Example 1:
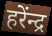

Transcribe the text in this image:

हरेंन्द्र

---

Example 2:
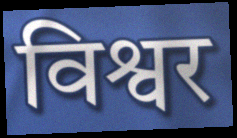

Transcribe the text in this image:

विश्वर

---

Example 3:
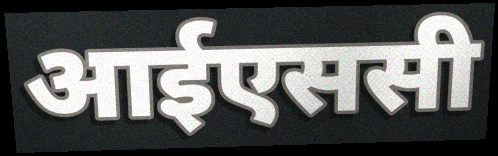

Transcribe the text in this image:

आईएससी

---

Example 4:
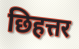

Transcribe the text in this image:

छिहत्तर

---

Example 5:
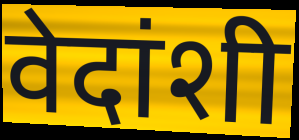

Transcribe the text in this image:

वेदांशी